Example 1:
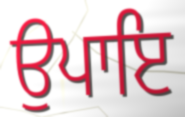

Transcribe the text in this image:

ਉਪਾਇ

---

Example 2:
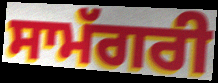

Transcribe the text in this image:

ਸਾਮੱਗਰੀ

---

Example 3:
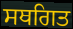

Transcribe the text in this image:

ਸਥਗਿਤ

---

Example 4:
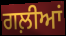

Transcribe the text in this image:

ਗਲ਼ੀਆਂ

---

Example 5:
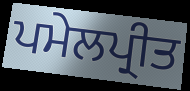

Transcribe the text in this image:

ਪਮੇਲਪ੍ਰੀਤ